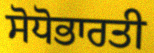
ਸੋਧੋਭਾਰਤੀ